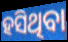
ହସିଥିବା